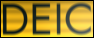
DEIC